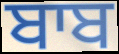
ਬਾਬ